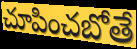
చూపించబోతే